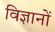
विज्ञानों